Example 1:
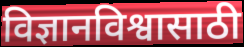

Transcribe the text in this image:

विज्ञानविश्वासाठी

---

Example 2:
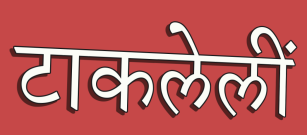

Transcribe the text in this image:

टाकलेलीं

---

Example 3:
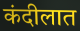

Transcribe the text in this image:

कंदीलात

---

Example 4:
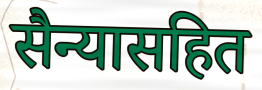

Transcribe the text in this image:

सैन्यासहित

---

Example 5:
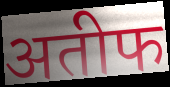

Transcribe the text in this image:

अतीफ